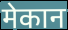
मेकान